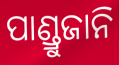
ପାଣ୍ଡ୍ରୁଜାନି